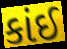
કાંઈ